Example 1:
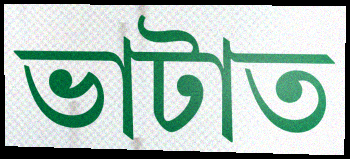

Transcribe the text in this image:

ভাটাত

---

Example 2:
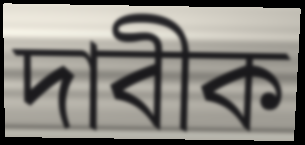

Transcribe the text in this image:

দাবীক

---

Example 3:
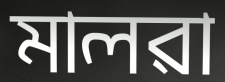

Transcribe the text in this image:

মালৱা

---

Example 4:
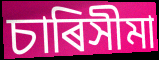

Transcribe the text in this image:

চাৰিসীমা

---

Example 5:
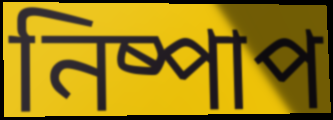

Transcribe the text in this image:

নিষ্পাপ